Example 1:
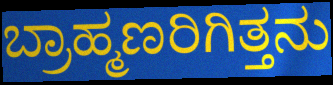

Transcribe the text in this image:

ಬ್ರಾಹ್ಮಣರಿಗಿತ್ತನು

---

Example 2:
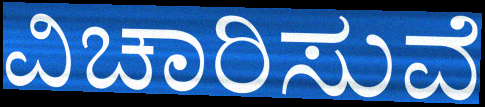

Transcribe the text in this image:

ವಿಚಾರಿಸುವೆ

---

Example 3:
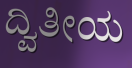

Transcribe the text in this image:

ದ್ವಿತೀಯ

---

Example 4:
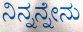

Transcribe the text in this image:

ನಿನ್ನನ್ನೇನು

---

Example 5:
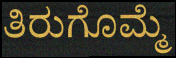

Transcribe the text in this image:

ತಿರುಗೊಮ್ಮೆ